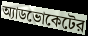
অ্যাডভোকেটের